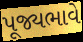
પૂજ્યભાવે